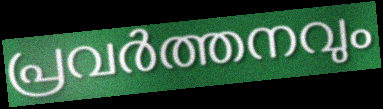
പ്രവർത്തനവും